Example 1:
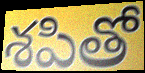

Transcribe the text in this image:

శపితో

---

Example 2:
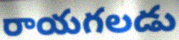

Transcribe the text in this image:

రాయగలడు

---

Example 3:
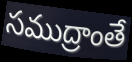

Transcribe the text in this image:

సముద్రాంతే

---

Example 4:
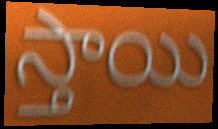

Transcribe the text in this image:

స్తాయి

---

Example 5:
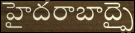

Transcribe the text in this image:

హైదరాబాద్పై